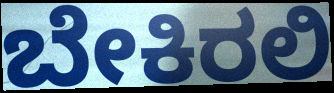
ಬೇಕಿರಲಿ